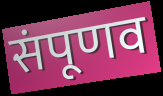
संपूणव